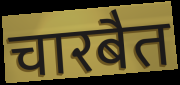
चारबैत